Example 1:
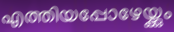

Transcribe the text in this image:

എത്തിയപ്പോഴേയ്ക്കും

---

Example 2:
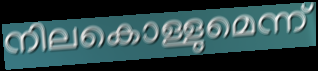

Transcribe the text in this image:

നിലകൊള്ളുമെന്ന്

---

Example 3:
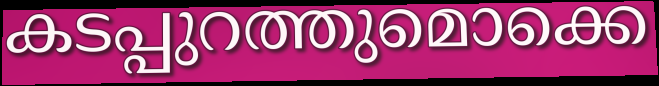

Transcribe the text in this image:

കടപ്പുറത്തുമൊക്കെ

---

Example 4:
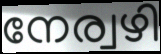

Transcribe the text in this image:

നേര്വഴി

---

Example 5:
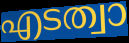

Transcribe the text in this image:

എടത്വാ